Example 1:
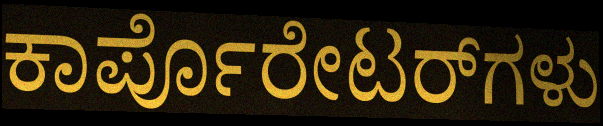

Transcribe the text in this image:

ಕಾರ್ಪೊರೇಟರ್‌ಗಳು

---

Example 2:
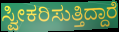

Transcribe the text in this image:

ಸ್ವೀಕರಿಸುತ್ತಿದ್ದಾರೆ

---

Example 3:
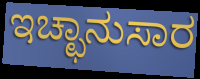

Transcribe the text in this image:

ಇಚ್ಛಾನುಸಾರ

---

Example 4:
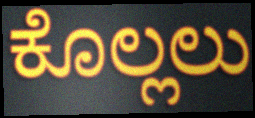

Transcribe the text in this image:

ಕೊಲ್ಲಲು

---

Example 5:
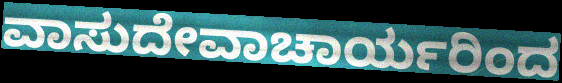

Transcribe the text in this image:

ವಾಸುದೇವಾಚಾರ್ಯರಿಂದ